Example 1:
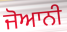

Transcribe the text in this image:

ਜੋਆਨੀ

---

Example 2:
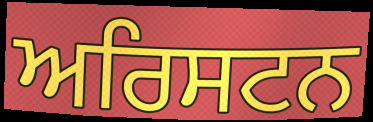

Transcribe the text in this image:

ਅਰਿਸਟਨ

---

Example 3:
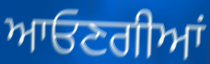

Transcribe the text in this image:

ਆਓਣਗੀਆਂ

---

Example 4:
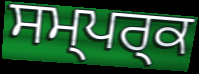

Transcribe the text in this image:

ਸਮ੍ਪਰ੍ਕ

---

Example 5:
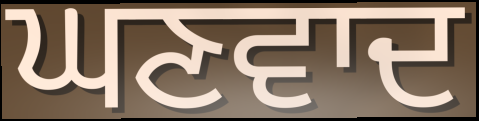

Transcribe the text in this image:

ਘਣਵਾਦ